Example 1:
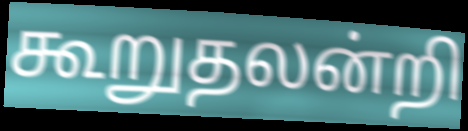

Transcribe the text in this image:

கூறுதலன்றி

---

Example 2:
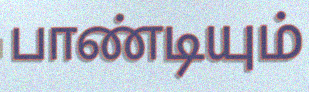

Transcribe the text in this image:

பாண்டியும்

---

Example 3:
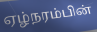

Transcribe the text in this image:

ஏழ்நரம்பின்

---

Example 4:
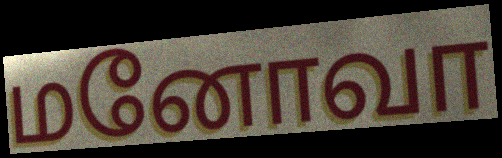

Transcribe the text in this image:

மனோவா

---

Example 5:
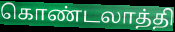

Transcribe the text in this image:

கொண்டலாத்தி